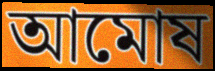
আমোষ